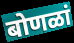
बोणळां